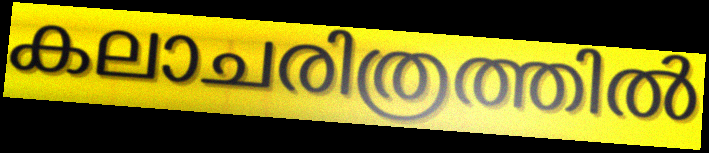
കലാചരിത്രത്തിൽ